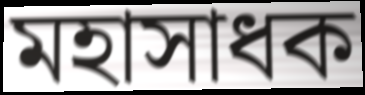
মহাসাধক